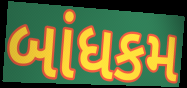
બાંધકમ